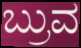
ಬ್ರುವ